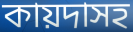
কায়দাসহ